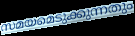
സമയമെടുക്കുന്നതും